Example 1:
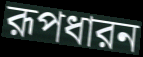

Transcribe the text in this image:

রূপধারন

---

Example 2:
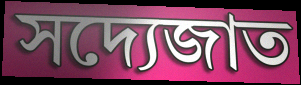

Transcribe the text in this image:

সদ্যেজাত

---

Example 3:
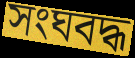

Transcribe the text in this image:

সংঘবদ্ধ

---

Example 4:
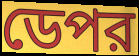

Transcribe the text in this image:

ডেপর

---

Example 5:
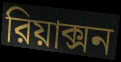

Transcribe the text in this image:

রিয়াক্সন